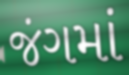
જંગમાં